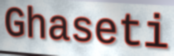
Ghaseti